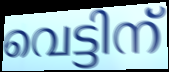
വെട്ടിന്